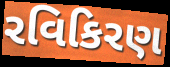
રવિકિરણ